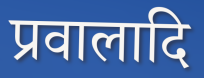
प्रवालादि